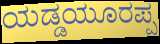
ಯಡ್ಡಯೂರಪ್ಪ